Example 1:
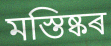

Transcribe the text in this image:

মস্তিষ্কৰ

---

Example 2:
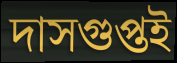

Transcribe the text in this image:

দাসগুপ্তই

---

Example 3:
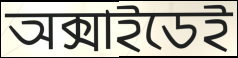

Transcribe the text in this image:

অক্সাইডেই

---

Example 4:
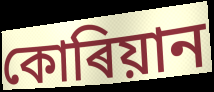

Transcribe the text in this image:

কোৰিয়ান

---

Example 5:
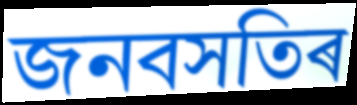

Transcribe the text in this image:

জনবসতিৰ